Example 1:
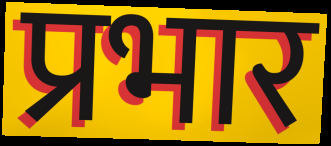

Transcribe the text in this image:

प्रभार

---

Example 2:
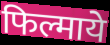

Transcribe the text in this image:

फिल्माये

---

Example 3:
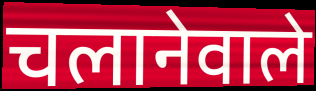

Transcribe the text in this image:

चलानेवाले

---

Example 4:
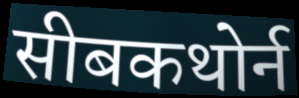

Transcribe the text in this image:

सीबकथोर्न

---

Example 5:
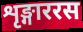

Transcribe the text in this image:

शृङ्गाररस